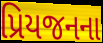
પ્રિયજનના